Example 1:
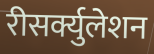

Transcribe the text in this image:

रीसर्क्युलेशन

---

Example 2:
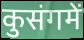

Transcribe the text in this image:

कुसंगमें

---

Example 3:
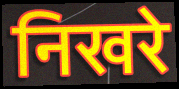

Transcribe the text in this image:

निखरे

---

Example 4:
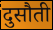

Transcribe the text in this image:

दुसौती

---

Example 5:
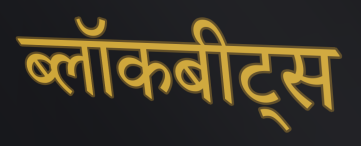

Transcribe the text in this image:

ब्लॉकबीट्स